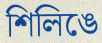
শিলিঙে